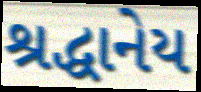
શ્રદ્ધાનેય